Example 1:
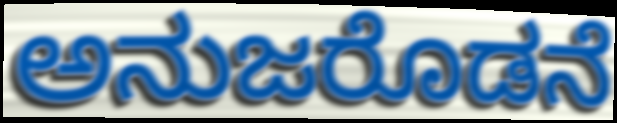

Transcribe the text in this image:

ಅನುಜರೊಡನೆ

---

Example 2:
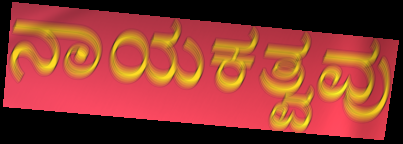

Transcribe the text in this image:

ನಾಯಕತ್ವವು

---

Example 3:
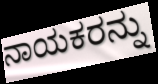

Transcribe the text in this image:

ನಾಯಕರನ್ನು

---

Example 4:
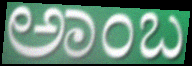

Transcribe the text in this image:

ಅಾಂಬ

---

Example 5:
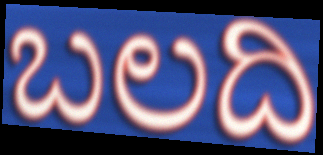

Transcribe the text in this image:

ಬಲದಿ